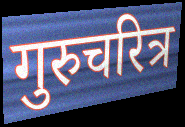
गुरुचरित्र